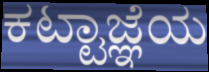
ಕಟ್ಟಾಜ್ಞೆಯ